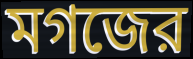
মগজের